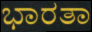
ಭಾರತಾ